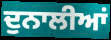
ਦੁਨਾਲੀਆਂ